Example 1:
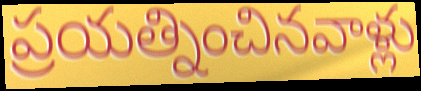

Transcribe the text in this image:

ప్రయత్నించినవాళ్లు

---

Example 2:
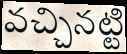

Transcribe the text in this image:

వచ్చినట్టి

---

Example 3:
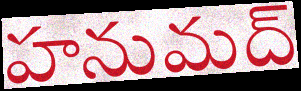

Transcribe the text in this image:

హనుమద్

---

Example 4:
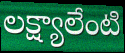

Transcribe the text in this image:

లక్ష్యాలేంటి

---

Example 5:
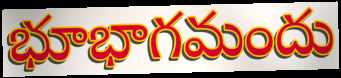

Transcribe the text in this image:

భూభాగమందు